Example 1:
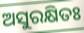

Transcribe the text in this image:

ଅସୁରକ୍ଷିତଃ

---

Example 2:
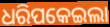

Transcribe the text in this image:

ଧରିପକେଇଲା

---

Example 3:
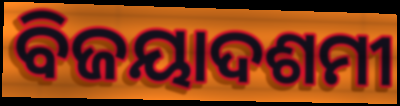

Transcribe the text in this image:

ବିଜୟାଦଶମୀ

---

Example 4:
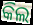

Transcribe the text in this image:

କିଲ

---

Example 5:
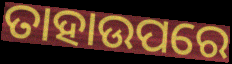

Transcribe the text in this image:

ତାହାଉପରେ